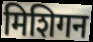
मिशिगन